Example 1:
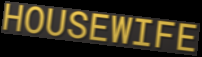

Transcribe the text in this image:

HOUSEWIFE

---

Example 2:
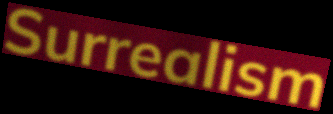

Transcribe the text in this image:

Surrealism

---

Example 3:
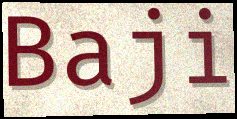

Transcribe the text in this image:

Baji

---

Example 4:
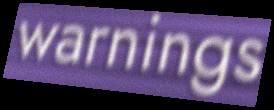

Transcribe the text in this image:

warnings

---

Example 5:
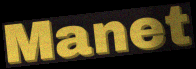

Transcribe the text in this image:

Manet